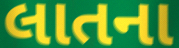
લાતના